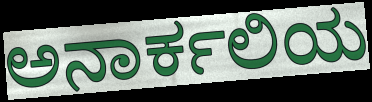
ಅನಾರ್ಕಲಿಯ